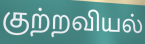
குற்றவியல்